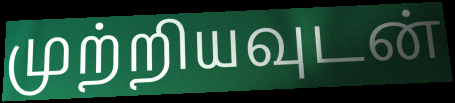
முற்றியவுடன்